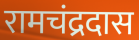
रामचंद्रदास